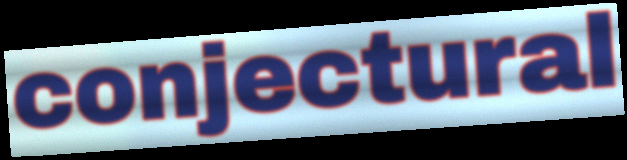
conjectural